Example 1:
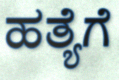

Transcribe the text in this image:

ಹತ್ಯೆಗೆ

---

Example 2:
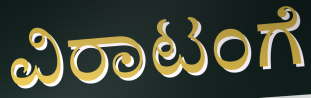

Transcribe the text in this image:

ವಿರಾಟಂಗೆ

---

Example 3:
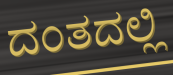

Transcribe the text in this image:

ದಂತದಲ್ಲಿ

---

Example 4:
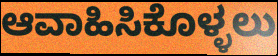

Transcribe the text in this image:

ಆವಾಹಿಸಿಕೊಳ್ಳಲು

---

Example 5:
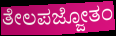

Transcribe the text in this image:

ತೇಲಪಜ್ಜೋತಂ